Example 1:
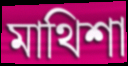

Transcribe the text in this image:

মাথিশা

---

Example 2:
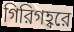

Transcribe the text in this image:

গিরিগহ্বরে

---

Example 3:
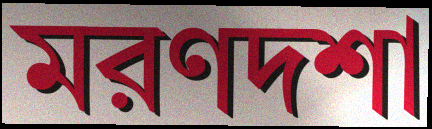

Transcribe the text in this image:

মরণদশা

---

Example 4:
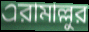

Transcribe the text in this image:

এরামাল্লুর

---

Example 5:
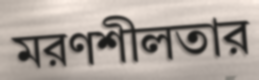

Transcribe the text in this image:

মরণশীলতার